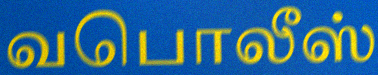
வபொலீஸ்